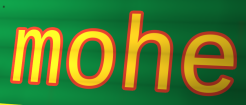
mohe